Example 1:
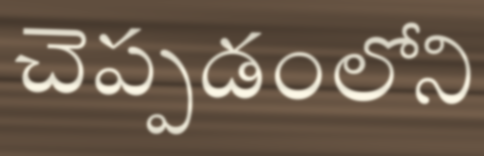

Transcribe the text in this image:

చెప్పడంలోని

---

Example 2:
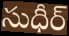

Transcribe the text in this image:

సుధీర్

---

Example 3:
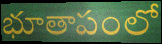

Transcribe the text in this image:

భూతాపంలో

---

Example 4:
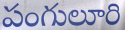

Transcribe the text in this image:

పంగులూరి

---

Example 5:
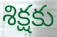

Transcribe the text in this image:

శిక్షకు